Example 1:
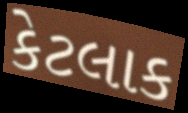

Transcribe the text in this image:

કેટલાક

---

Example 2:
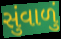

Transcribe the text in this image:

સુંવાળું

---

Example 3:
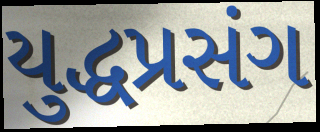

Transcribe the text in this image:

યુદ્ધપ્રસંગ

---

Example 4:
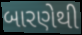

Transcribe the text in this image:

બારણેથી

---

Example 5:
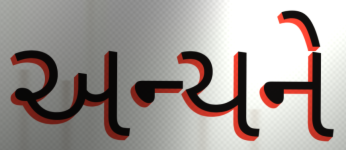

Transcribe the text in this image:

અન્યને